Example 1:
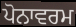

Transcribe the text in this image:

ਪੋਨਾਵਰਮ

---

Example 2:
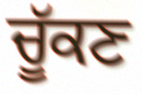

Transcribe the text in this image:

ਚੂੱਕਣ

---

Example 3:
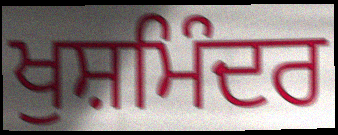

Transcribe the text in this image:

ਖੁਸ਼ਮਿੰਦਰ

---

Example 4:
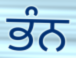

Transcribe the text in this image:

ਭੰਨ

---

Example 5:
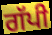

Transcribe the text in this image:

ਗੱਪੀ